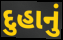
દુહાનું